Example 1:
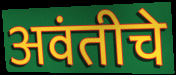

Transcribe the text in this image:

अवंतीचे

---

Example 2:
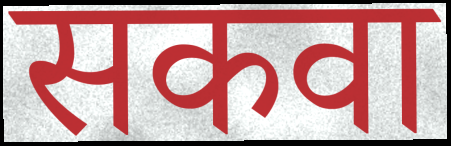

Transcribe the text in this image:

सकवा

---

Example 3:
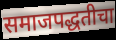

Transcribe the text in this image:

समाजपद्धतीचा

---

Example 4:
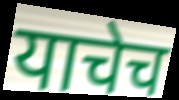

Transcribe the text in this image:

याचेच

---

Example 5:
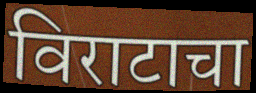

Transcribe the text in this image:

विराटाचा